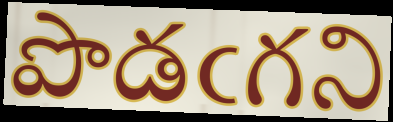
పొడఁగని